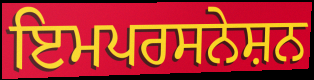
ਇਮਪਰਸਨੇਸ਼ਨ